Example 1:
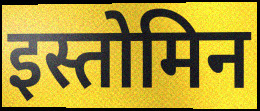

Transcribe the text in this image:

इस्तोमिन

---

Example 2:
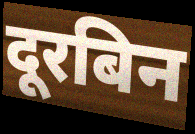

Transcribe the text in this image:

दूरबिन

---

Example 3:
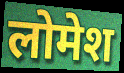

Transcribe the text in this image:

लोमेश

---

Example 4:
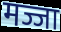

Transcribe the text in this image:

मज्जा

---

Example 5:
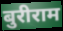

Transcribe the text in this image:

बुरीराम